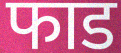
फाड